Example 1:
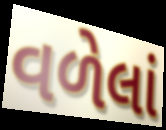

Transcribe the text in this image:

વળેલાં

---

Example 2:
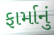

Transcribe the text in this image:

ફાર્માનું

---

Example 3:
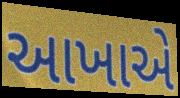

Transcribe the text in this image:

આખાએ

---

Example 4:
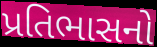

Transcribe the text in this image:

પ્રતિભાસનો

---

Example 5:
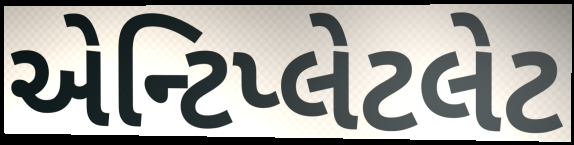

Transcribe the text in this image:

એન્ટિપ્લેટલેટ